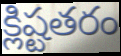
క్లిష్టతరం